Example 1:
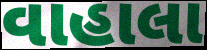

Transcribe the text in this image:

વાહાલા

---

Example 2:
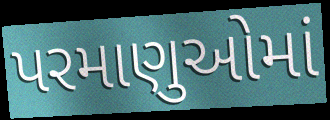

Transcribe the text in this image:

પરમાણુઓમાં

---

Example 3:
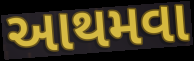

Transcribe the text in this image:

આથમવા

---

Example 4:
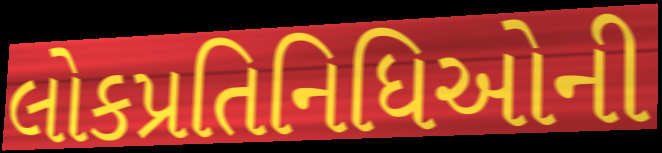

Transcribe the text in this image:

લોકપ્રતિનિધિઓની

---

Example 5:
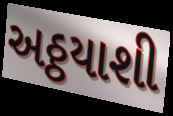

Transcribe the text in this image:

અઠ્ઠયાશી